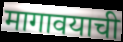
मागावयाची